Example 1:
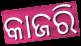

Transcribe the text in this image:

କାଜରି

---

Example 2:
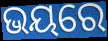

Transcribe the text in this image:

ଭୟରେ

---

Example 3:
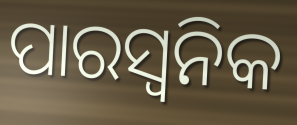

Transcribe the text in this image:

ପାରସ୍ୱନିକ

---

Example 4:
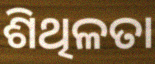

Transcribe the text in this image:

ଶିଥିଳତା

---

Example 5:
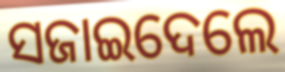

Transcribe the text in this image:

ସଜାଇଦେଲେ